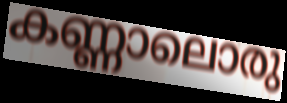
കണ്ണാലൊരു